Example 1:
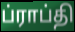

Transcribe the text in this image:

ப்ராப்தி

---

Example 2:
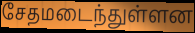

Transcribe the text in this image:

சேதமடைந்துள்ளன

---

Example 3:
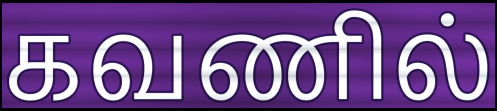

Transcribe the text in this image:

கவணில்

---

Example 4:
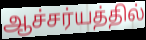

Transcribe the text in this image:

ஆச்சர்யத்தில்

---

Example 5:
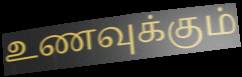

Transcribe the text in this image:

உணவுக்கும்